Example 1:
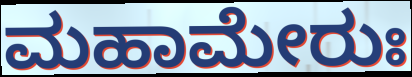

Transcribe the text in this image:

ಮಹಾಮೇರುಃ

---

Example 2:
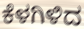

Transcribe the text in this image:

ಕೆಳಗಿಳಿದ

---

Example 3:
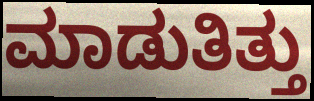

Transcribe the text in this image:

ಮಾಡುತಿತ್ತು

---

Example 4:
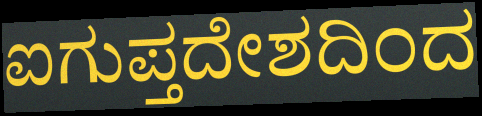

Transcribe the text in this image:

ಐಗುಪ್ತದೇಶದಿಂದ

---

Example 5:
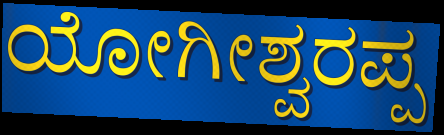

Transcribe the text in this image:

ಯೋಗೀಶ್ವರಪ್ಪ